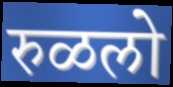
रुळलो